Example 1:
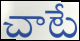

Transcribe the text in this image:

చాటే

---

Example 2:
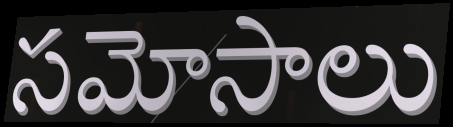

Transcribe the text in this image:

సమోసాలు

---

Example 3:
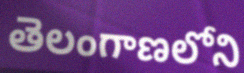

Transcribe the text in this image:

తెలంగాణలోని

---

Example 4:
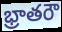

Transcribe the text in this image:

భ్రాతరౌ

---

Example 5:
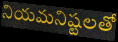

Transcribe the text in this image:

నియమనిష్టలతో